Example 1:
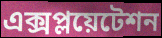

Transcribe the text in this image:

এক্সপ্লয়েটেশন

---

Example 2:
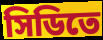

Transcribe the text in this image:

সিডিতে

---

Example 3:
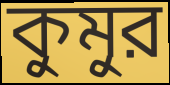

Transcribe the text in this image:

কুমুর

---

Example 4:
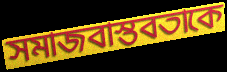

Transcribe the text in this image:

সমাজবাস্তবতাকে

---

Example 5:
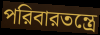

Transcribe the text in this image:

পরিবারতন্ত্রে